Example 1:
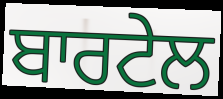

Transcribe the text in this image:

ਬਾਰਟੇਲ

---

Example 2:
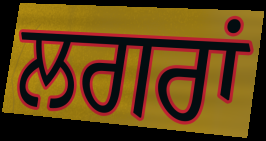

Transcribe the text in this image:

ਲਗਰਾਂ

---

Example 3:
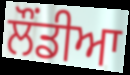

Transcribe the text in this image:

ਲੌਂਡੀਆ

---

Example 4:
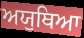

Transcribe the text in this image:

ਅਯੁਥਿਆ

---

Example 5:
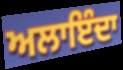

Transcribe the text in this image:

ਅਲਾਇੰਦਾ